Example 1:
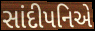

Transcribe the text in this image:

સાંદીપનિએ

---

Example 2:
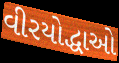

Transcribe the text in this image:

વીરયોદ્ધાઓ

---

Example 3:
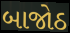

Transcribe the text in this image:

બાજોઠ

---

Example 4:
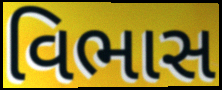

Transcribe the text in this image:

વિભાસ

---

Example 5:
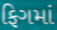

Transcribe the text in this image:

ફિગમાં